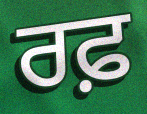
ਰਫ਼